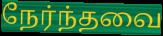
நேர்ந்தவை